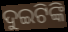
ଦୁଇଟିଙ୍କି